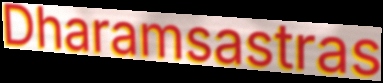
Dharamsastras